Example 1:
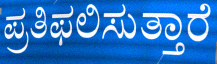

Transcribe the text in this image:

ಪ್ರತಿಫಲಿಸುತ್ತಾರೆ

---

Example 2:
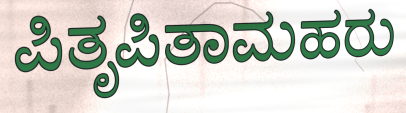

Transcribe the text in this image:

ಪಿತೃಪಿತಾಮಹರು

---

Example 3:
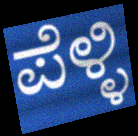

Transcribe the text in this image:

ಪೆಳ್ಳಿ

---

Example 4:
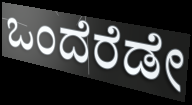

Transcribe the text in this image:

ಒಂದೆರೆಡೇ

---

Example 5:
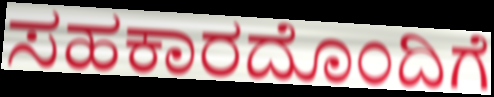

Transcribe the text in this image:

ಸಹಕಾರದೊಂದಿಗೆ